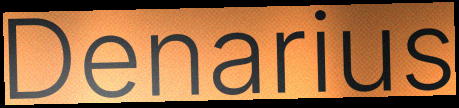
Denarius